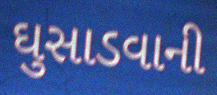
ઘુસાડવાની